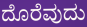
ದೊರೆವುದು